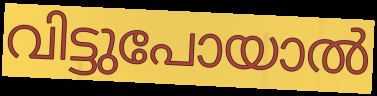
വിട്ടുപോയാൽ